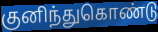
குனிந்துகொண்டு